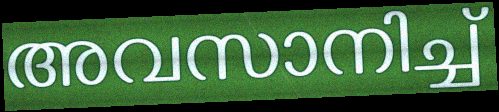
അവസാനിച്ച്